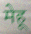
मेहू